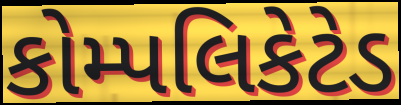
કોમ્પલિકેટેડ